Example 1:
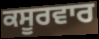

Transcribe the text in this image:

ਕਸੂਰਵਾਰ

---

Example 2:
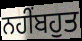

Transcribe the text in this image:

ਨਹੀਂਬਹੁਤ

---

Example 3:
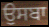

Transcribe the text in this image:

ਉਸਬਾ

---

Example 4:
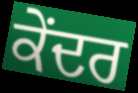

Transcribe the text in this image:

ਕੇੰਦਰ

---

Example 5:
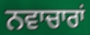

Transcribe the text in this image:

ਨਵਾਚਾਰਾਂ